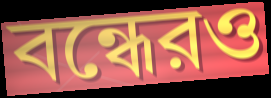
বন্ধেরও